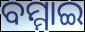
ବମ୍ମାଇ